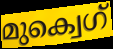
മുക്വെഗ്